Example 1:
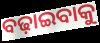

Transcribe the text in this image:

ବଢ଼ାଇବାକୁ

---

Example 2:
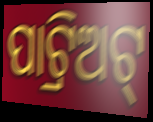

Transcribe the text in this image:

ପାଟ୍ରିଅଟ୍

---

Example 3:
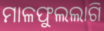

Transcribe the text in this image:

ମାଳଫୁଲଲାଗି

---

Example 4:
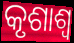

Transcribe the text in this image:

କୃଶାଶ୍ୱ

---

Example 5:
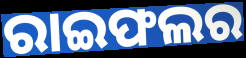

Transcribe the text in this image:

ରାଇଫଲର